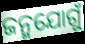
ଜନ୍ମଯୋଗୁଁ